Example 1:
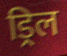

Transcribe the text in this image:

ड्रिल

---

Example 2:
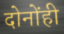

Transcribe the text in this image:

दोनोंही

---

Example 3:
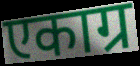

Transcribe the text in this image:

एकाग्र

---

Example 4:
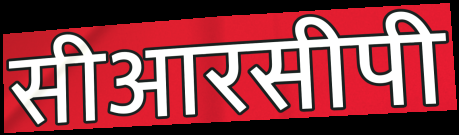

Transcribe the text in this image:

सीआरसीपी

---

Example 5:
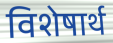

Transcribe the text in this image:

विशेषार्थ